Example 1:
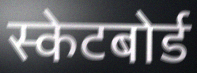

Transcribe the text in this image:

स्केटबोर्ड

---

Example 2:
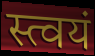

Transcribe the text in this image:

स्त्वयं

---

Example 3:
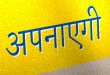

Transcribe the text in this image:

अपनाएगी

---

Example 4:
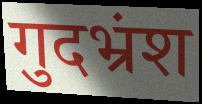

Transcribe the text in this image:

गुदभ्रंश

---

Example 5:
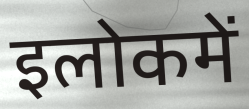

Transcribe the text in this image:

इलोकमें